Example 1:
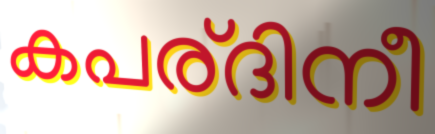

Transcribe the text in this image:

കപര്ദിനീ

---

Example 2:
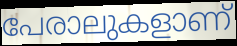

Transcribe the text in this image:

പേരാലുകളാണ്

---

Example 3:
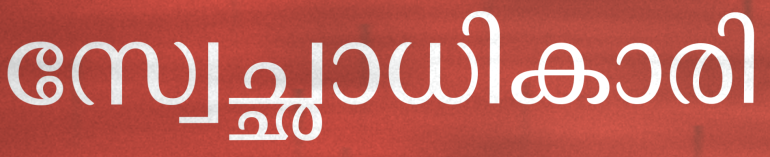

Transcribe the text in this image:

സ്വേച്ഛാധികാരി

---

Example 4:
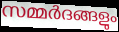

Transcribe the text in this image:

സമ്മർദങ്ങളും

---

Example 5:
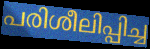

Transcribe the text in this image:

പരിശീലിപ്പിച്ച